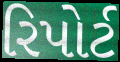
રિપોર્ટ